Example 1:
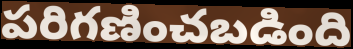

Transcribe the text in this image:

పరిగణించబడింది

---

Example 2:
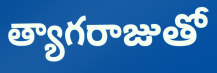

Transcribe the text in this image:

త్యాగరాజుతో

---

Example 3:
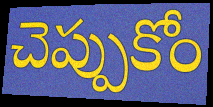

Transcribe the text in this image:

చెప్పుకోం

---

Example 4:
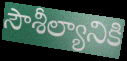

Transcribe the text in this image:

సౌశీల్యానికి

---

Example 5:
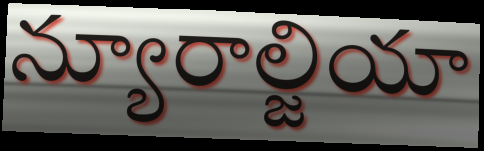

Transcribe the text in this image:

న్యూరాల్జియా